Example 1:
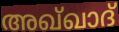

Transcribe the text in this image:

അഖ്ഖാദ്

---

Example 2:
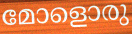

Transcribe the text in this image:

മോളൊരു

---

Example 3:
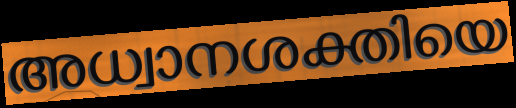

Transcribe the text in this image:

അധ്വാനശക്തിയെ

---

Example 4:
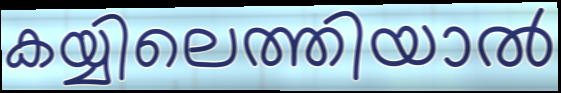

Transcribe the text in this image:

കയ്യിലെത്തിയാൽ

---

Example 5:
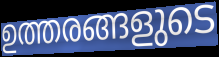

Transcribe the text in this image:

ഉത്തരങ്ങളുടെ